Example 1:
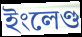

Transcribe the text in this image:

ইংলেণ্ড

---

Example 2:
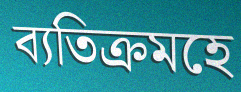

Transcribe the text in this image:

ব্যতিক্ৰমহে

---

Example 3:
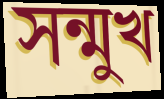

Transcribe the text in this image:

সন্মুখ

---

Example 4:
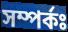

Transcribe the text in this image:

সম্পৰ্কঃ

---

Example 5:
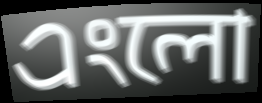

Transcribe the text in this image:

এংলো